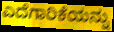
ಎದೆಗಾರಿಕೆಯನ್ನು